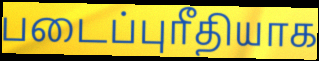
படைப்புரீதியாக